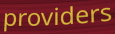
providers